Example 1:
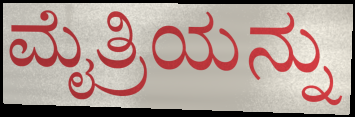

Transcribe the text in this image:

ಮೈತ್ರಿಯನ್ನು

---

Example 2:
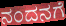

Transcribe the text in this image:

ನಂದನಗೆ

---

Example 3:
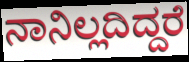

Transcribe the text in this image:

ನಾನಿಲ್ಲದಿದ್ದರೆ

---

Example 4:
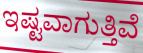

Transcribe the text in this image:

ಇಷ್ಟವಾಗುತ್ತಿವೆ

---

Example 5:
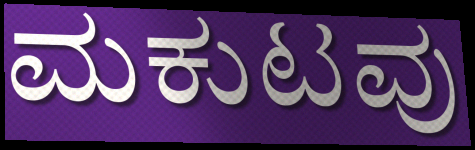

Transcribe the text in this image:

ಮಕುಟವು